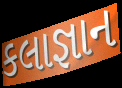
કલાજ્ઞાન